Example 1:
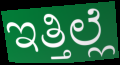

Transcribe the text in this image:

ಇತ್ತಿಲ್ಲೆ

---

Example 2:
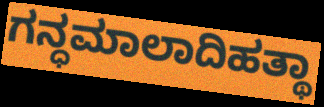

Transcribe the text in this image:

ಗನ್ಧಮಾಲಾದಿಹತ್ಥಾ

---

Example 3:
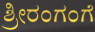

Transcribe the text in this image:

ಶ್ರೀರಂಗಂಗೆ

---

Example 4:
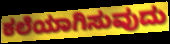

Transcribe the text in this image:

ಕಲೆಯಾಗಿಸುವುದು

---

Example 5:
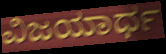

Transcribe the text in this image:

ವಿಜಯಾರ್ಧ